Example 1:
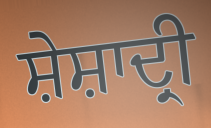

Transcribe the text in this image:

ਸ਼ੇਸ਼ਾਦ੍ਰੀ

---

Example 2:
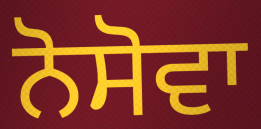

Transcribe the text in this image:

ਨੋਸੋਵਾ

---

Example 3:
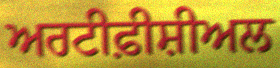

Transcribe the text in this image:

ਅਰਟੀਫ਼ੀਸ਼ੀਅਲ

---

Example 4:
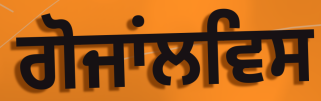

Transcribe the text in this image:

ਗੋਜਾਂਲਵਿਸ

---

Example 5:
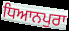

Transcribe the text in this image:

ਧਿਆਨਪੁਰਾ